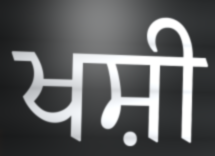
ਖਸ਼ੀ